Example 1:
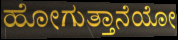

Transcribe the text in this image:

ಹೋಗುತ್ತಾನೆಯೋ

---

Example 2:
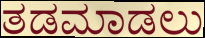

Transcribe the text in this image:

ತಡಮಾಡಲು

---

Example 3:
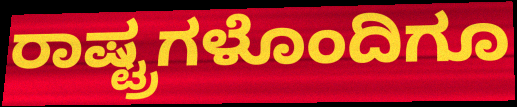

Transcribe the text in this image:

ರಾಷ್ಟ್ರಗಳೊಂದಿಗೂ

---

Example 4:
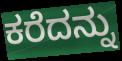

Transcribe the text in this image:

ಕರೆದನ್ನು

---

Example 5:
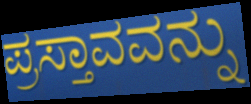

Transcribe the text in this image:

ಪ್ರಸ್ತಾವವನ್ನು